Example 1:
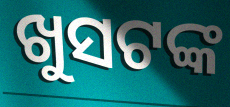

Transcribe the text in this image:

ଖୁସଟଙ୍କ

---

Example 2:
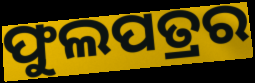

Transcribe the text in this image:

ଫୁଲପତ୍ରର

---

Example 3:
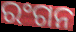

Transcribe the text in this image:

ରଂଗନ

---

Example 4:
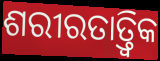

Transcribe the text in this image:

ଶରୀରତାତ୍ତ୍ଵିକ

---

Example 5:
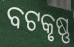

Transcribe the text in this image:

ବଟକୃଷ୍ଣ